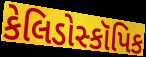
કેલિડોસ્કૉપિક